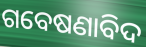
ଗବେଷଣାବିଦ